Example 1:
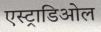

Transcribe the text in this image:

एस्ट्राडिओल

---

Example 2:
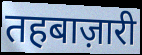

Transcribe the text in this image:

तहबाज़ारी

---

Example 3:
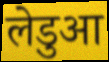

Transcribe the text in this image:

लेडुआ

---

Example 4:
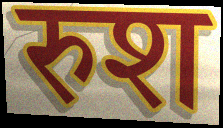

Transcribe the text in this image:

रुश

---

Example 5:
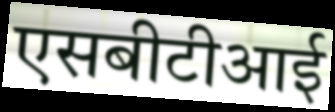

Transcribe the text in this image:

एसबीटीआई